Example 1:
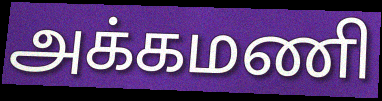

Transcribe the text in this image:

அக்கமணி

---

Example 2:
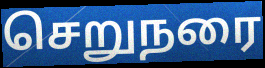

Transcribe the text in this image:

செறுநரை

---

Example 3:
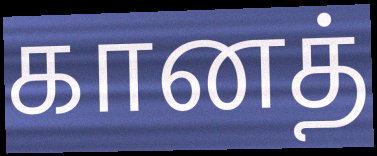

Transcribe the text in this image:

கானத்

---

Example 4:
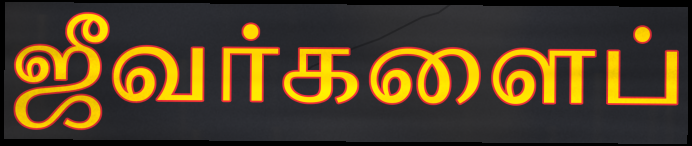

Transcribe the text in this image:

ஜீவர்களைப்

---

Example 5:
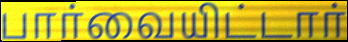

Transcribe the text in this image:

பார்வையிட்டார்